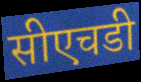
सीएचडी